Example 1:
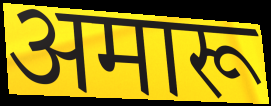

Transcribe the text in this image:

अमारू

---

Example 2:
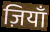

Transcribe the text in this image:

ज़ियाँ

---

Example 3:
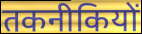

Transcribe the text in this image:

तकनीकियों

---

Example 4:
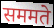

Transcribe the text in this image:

सममते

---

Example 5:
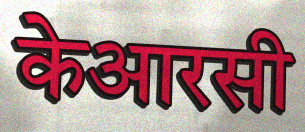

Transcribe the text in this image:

केआरसी